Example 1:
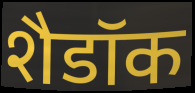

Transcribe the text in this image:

शैडॉक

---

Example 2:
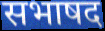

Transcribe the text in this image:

सभाषद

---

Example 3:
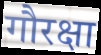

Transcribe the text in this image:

गौरक्षा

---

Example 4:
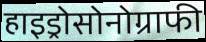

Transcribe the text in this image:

हाइड्रोसोनोग्राफी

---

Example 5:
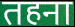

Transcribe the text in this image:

तहना